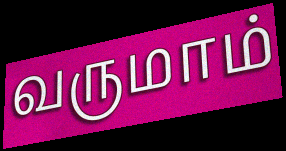
வருமாம்